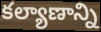
కల్యాణాన్ని